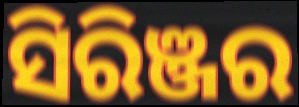
ସିରିଞ୍ଜର